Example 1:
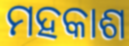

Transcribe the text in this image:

ମହକାଶ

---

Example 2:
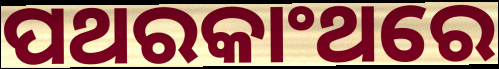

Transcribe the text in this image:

ପଥରକାଂଥରେ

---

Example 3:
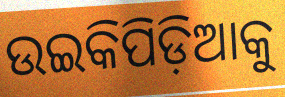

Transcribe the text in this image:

ଉଇକିପିଡ଼ିଆକୁ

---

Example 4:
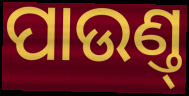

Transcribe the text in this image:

ପାଉଣ୍ତ୍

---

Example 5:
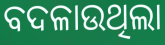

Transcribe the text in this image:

ବଦଳାଉଥିଲା